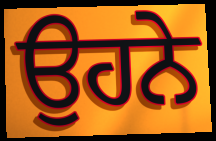
ਉਹਨੇ